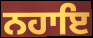
ਨਹਾਇ